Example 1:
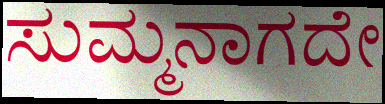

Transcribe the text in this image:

ಸುಮ್ಮನಾಗದೇ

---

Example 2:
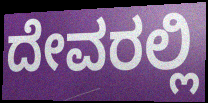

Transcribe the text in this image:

ದೇವರಲ್ಲಿ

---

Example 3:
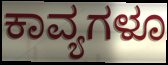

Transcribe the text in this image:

ಕಾವ್ಯಗಳೂ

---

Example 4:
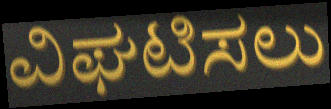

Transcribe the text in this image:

ವಿಘಟಿಸಲು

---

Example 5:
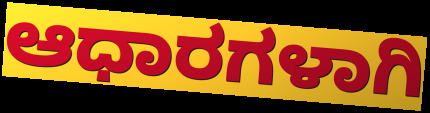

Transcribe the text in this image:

ಆಧಾರಗಳಾಗಿ